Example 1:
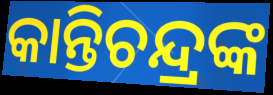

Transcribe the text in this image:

କାନ୍ତିଚନ୍ଦ୍ରଙ୍କ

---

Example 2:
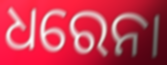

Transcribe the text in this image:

ଧରେନା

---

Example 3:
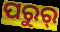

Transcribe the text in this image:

ପରୁର୍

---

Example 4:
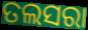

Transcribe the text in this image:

ତଲସରା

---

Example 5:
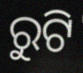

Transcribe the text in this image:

ରୁଟି